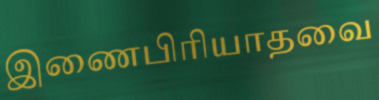
இணைபிரியாதவை